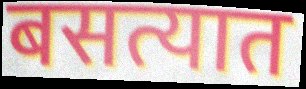
बसत्यात